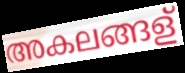
അകലങ്ങള്